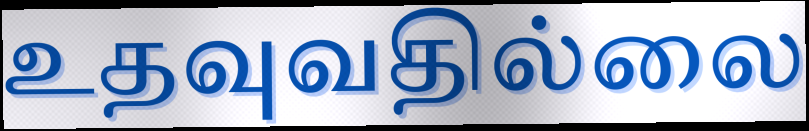
உதவுவதில்லை